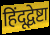
हिंदूद्वेष्टा